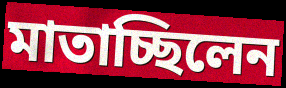
মাতাচ্ছিলেন